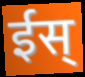
ईस्